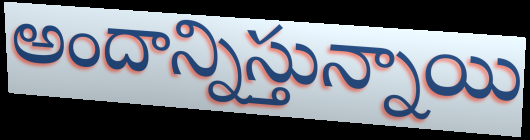
అందాన్నిస్తున్నాయి